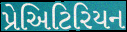
પ્રેઅિટિરિયન